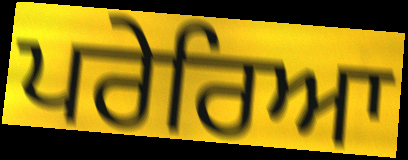
ਪਰੇਰਿਆ